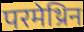
परमेथ्रिन